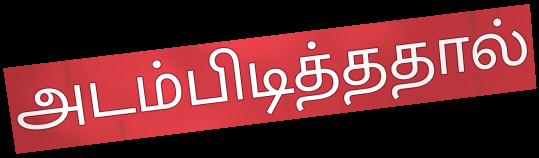
அடம்பிடித்ததால்